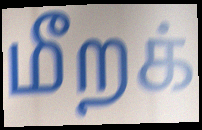
மீறக்